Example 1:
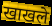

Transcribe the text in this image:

खाखले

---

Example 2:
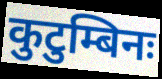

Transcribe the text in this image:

कुटुम्बिनः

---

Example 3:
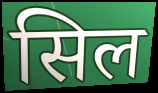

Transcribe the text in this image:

सिल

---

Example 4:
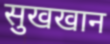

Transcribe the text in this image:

सुखखान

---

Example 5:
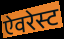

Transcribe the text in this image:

ऐवरेस्ट